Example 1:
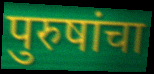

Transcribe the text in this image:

पुरुषांचा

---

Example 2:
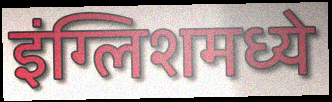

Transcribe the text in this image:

इंग्लिशमध्ये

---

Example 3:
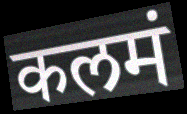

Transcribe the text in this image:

कलमं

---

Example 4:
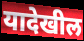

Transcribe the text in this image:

यादेखील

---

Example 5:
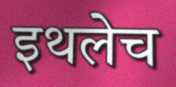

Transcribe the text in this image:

इथलेच